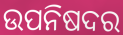
ଉପନିଷଦର